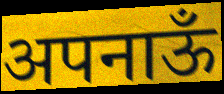
अपनाऊँ